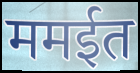
ममईत